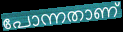
പോന്നതാണ്